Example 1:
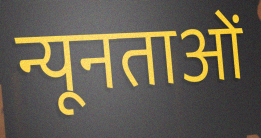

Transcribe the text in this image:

न्यूनताओं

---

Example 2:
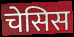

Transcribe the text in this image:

चेसिस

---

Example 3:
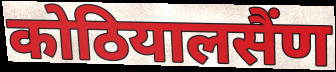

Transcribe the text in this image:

कोठियालसैंण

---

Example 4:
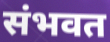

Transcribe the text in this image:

संभवत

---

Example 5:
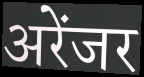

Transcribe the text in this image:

अरेंजर